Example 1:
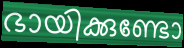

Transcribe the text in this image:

ഭായിക്കുണ്ടോ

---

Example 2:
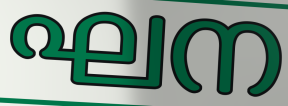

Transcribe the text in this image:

ഘന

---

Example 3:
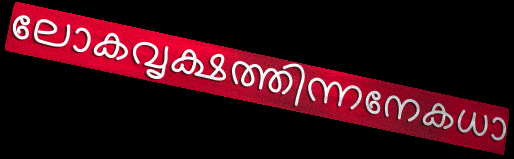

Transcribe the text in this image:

ലോകവൃക്ഷത്തിന്നനേകധാ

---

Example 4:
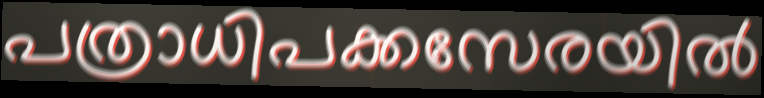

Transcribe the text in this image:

പത്രാധിപക്കസേരയിൽ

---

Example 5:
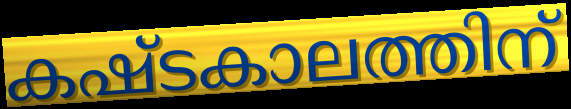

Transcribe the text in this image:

കഷ്ടകാലത്തിന്